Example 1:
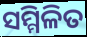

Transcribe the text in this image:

ସମ୍ମିଳିତ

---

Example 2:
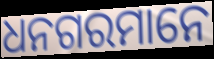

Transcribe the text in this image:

ଧନଗରମାନେ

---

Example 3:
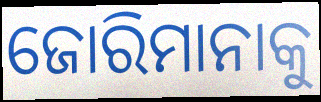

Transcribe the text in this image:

ଜୋରିମାନାକୁ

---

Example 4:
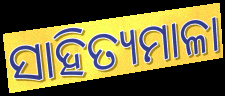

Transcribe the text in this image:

ସାହିତ୍ୟମାଳା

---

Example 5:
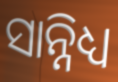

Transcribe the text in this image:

ସାନ୍ନିଧ୍ୟ